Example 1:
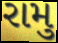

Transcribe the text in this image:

રામુ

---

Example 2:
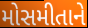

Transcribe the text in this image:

મોસમીતાને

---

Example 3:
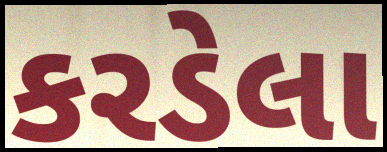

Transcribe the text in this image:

કરડેલા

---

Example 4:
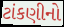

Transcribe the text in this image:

ટાંકણીનો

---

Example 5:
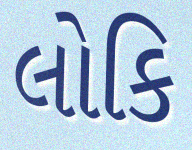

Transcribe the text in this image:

લોકિ